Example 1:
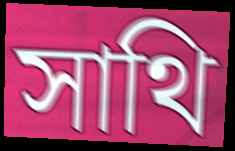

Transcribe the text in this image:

সাথি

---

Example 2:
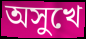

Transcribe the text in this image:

অসুখে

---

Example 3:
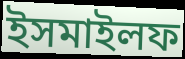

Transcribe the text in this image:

ইসমাইলফ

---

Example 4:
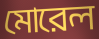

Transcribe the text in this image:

মোরেল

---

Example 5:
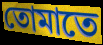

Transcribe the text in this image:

তোমাতে